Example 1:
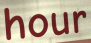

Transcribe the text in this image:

hour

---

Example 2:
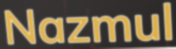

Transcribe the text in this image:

Nazmul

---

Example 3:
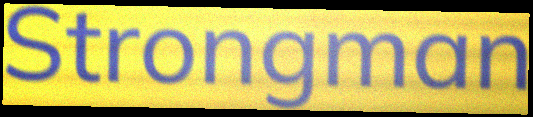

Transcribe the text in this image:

Strongman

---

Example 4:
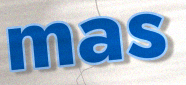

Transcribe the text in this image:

mas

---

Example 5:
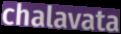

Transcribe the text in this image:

chalavata